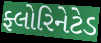
ફ્લોરિનેટેડ